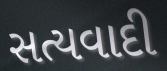
સત્યવાદી